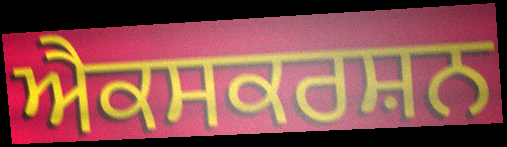
ਐਕਸਕਰਸ਼ਨ